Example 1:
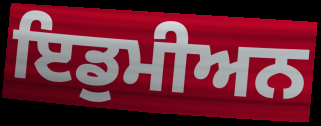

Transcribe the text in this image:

ਇਡੁਮੀਅਨ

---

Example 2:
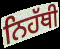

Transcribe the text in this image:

ਨਿਹੱਥੀ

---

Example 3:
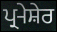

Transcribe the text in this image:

ਪ੍ਰ੍ਮੇਸ਼ੇਰ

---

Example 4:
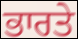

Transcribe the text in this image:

ਭਾਰਤੇ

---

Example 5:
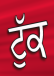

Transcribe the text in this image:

ਟੁੱਕ